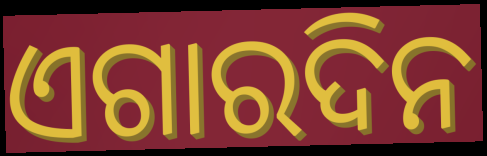
ଏଗାରଦିନ